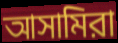
আসামিরা